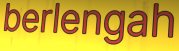
berlengah